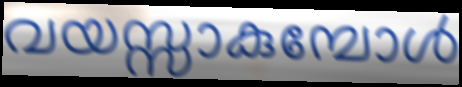
വയസ്സാകുമ്പോൾ